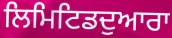
ਲਿਮਿਟਿਡਦੁਆਰਾ